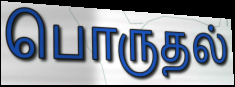
பொருதல்